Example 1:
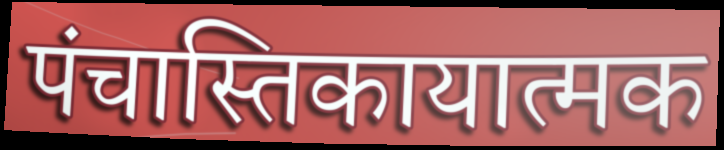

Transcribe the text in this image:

पंचास्तिकायात्मक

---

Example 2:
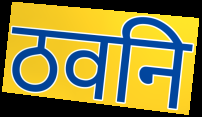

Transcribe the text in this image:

ठवनि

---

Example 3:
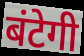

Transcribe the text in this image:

बंटेगी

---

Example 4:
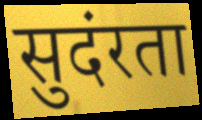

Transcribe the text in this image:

सुदंरता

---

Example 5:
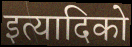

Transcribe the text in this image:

इत्यादिको